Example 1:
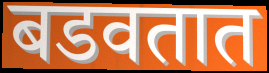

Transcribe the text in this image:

बडवतात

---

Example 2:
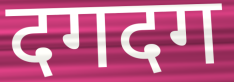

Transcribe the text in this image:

दगदग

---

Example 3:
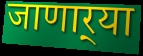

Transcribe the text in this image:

जाणार्या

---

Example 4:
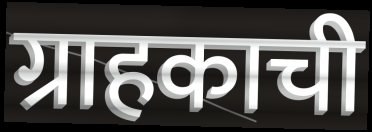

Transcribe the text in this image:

ग्राहकाची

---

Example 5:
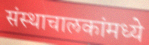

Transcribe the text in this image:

संस्थाचालकांमध्ये